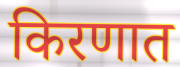
किरणात